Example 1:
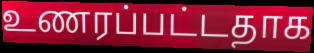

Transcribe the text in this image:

உணரப்பட்டதாக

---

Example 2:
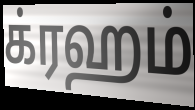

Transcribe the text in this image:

க்ரஹம்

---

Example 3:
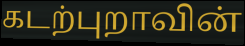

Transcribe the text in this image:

கடற்புறாவின்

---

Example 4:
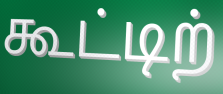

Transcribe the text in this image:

கூட்டிற்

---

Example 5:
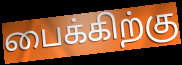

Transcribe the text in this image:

பைக்கிற்கு